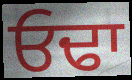
ਓਢਾ